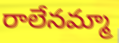
రాలేనమ్మా